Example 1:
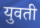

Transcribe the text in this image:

युवती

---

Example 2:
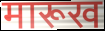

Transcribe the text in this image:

मारूख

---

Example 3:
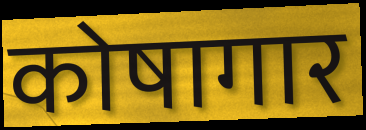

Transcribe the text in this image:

कोषागार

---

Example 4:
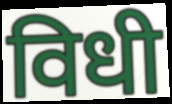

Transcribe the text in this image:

विधी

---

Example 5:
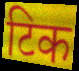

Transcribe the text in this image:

टिक